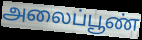
அலைப்பூண்